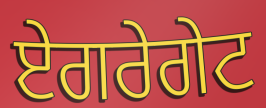
ਏਗਰੇਗੇਟ